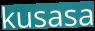
kusasa